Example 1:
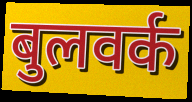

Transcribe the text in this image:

बुलवर्क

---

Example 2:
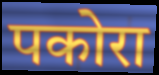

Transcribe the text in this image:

पकोरा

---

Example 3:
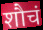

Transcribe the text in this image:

शौचं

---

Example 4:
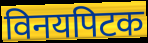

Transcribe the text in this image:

विनयपिटक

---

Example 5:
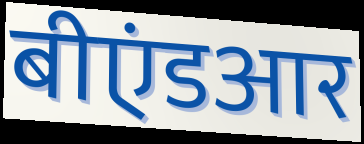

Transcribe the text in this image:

बीएंडआर